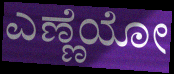
ಎಣ್ಣೆಯೋ